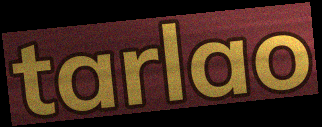
tarlao